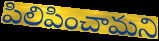
పిలిపించామని